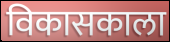
विकासकाला